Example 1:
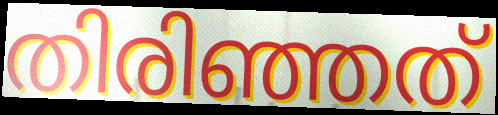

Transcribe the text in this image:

തിരിഞ്ഞത്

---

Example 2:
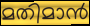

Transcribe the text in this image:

മതിമാൻ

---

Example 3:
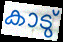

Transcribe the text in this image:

കാടു്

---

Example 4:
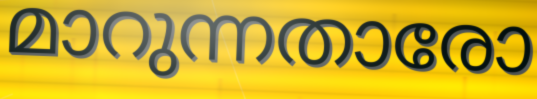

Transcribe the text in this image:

മാറുന്നതാരോ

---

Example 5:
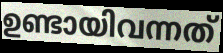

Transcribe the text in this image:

ഉണ്ടായിവന്നത്